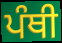
ਪੰਥੀ